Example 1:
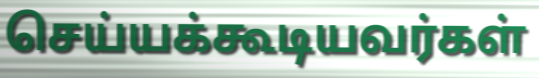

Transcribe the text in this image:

செய்யக்கூடியவர்கள்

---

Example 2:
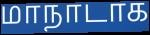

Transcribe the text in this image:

மாநாடாக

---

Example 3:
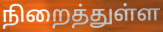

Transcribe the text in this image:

நிறைத்துள்ள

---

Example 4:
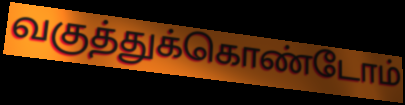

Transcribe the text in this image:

வகுத்துக்கொண்டோம்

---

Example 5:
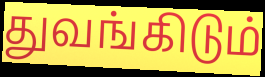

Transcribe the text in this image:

துவங்கிடும்